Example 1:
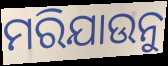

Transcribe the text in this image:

ମରିଯାଉନୁ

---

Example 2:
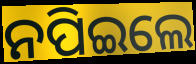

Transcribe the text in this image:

ନପିଇଲେ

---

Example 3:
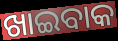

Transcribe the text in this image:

ଖାଇବାକ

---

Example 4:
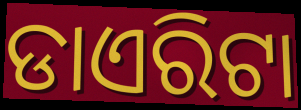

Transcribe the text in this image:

ଡାଏରିଟା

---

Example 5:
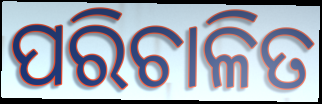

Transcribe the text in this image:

ପରିଚାଳିତ